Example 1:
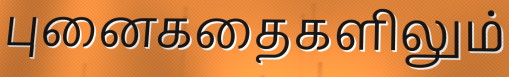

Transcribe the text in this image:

புனைகதைகளிலும்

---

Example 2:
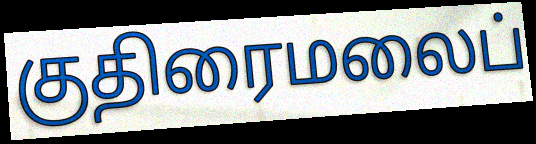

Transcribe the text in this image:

குதிரைமலைப்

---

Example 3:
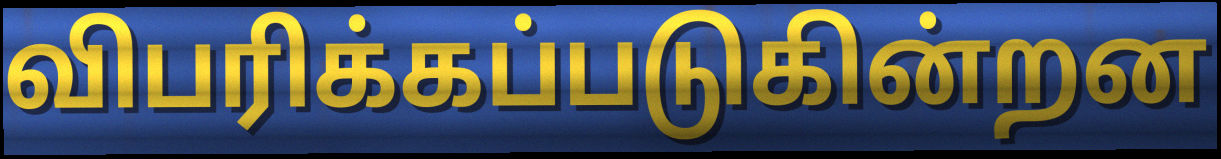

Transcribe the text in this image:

விபரிக்கப்படுகின்றன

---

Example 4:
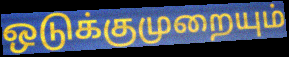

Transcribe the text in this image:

ஒடுக்குமுறையும்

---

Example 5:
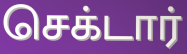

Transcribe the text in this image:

செக்டார்